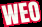
WEO